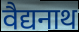
वैद्यनाथ